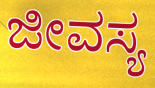
ಜೀವಸ್ಯ